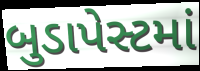
બુડાપેસ્ટમાં